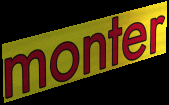
monter